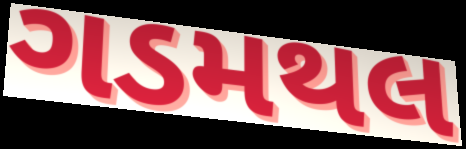
ગડમથલ